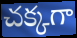
చక్కగా